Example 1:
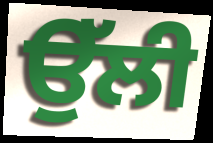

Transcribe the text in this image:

ਉੱਲੀ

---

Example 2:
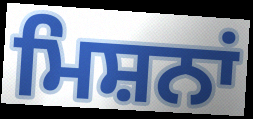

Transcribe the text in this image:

ਮਿਸ਼ਨਾਂ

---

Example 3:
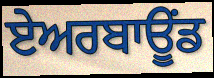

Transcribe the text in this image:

ਏਅਰਬਾਊਂਡ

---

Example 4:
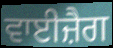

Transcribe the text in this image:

ਵਾਈਜ਼ੈਗ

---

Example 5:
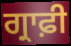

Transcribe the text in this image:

ਗ੍ਰਾਫ਼ੀ